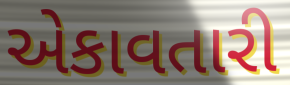
એકાવતારી